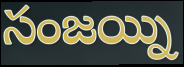
సంజయ్ని